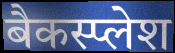
बैकस्प्लेश